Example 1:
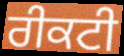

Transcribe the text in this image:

ਰੀਕਟੀ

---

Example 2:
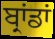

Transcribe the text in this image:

ਬ੍ਰਾਂਡਾਂ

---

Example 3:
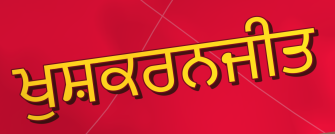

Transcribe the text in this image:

ਖੁਸ਼ਕਰਨਜੀਤ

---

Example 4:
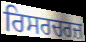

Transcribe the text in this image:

ਰਿਸਰਚਰਜ਼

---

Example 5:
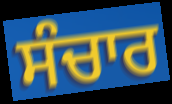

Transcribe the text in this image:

ਸੰਚਾਰ